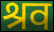
श्रव